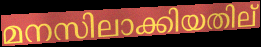
മനസിലാക്കിയതില്